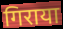
गिराया